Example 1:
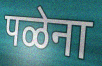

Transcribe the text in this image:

पळेना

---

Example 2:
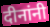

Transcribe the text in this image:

दीनांनी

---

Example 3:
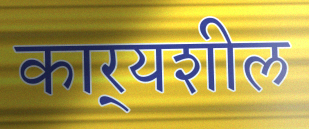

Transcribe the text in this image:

कार्यशील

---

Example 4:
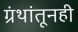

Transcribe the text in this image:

ग्रंथांतूनही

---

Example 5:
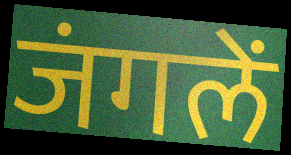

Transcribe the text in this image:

जंगलें